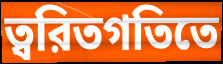
ত্বরিতগতিতে